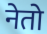
नेतो